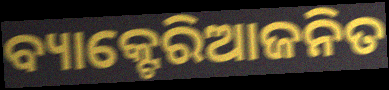
ବ୍ୟାକ୍ଟେରିଆଜନିତ